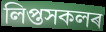
লিপ্তসকলৰ